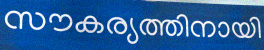
സൗകര്യത്തിനായി